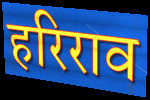
हरिराव